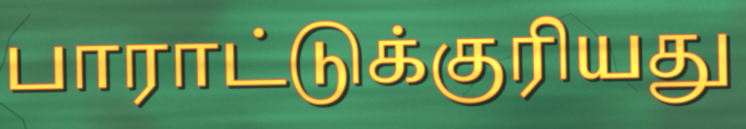
பாராட்டுக்குரியது